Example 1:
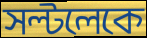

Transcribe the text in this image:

সল্টলেকে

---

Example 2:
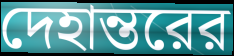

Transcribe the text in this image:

দেহান্তরের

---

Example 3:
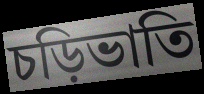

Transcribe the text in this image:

চড়িভাতি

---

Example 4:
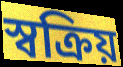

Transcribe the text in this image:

স্বক্রিয়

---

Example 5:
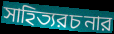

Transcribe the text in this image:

সাহিত্যরচনার